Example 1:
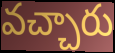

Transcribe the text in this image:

వచ్చారు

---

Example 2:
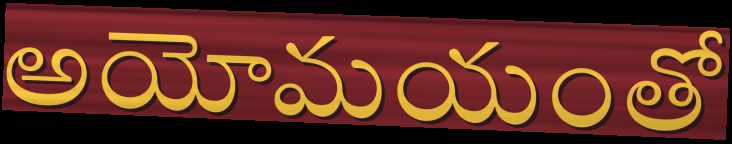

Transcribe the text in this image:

అయోమయంతో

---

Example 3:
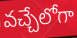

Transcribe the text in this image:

వచ్చేలోగా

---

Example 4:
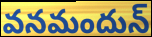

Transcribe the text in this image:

వనమందున్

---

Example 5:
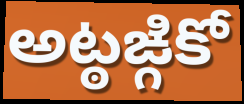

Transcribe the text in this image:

అట్ఠఙ్గికో